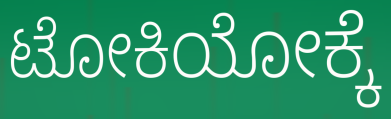
ಟೋಕಿಯೋಕ್ಕೆ